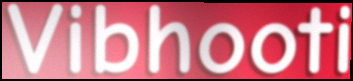
Vibhooti